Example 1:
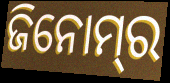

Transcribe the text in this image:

ଜିନୋମ୍‌ର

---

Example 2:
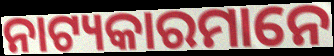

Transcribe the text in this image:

ନାଟ୍ୟକାରମାନେ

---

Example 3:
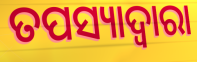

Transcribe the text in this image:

ତପସ୍ୟାଦ୍ୱାରା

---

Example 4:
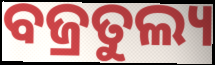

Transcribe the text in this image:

ବଜ୍ରତୁଲ୍ୟ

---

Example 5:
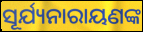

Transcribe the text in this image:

ସୂର୍ଯ୍ୟନାରାୟଣଙ୍କ